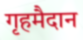
गृहमैदान